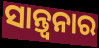
ସାନ୍ତ୍ୱନାର